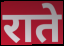
राते